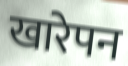
खारेपन